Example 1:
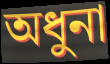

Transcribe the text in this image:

অধুনা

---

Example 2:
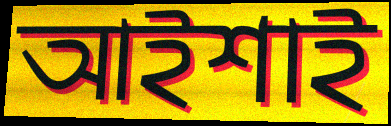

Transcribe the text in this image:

আইশাই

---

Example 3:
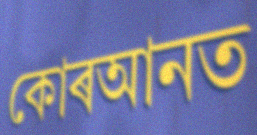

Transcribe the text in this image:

কোৰআনত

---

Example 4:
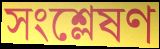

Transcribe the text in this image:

সংশ্লেষণ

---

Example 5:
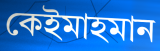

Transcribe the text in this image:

কেইমাহমান